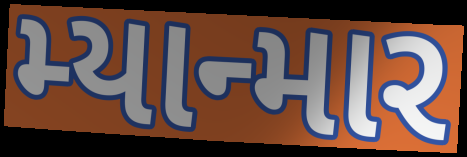
મ્યાન્માર